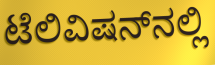
ಟೆಲಿವಿಷನ್‌ನಲ್ಲಿ